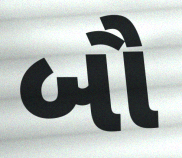
બૌ